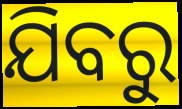
ଯିବରୁ